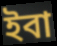
ইবা